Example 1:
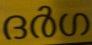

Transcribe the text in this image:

ദർഗ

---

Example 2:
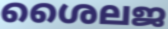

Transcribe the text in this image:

ശൈലജ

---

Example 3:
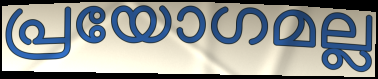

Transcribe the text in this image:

പ്രയോഗമല്ല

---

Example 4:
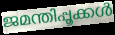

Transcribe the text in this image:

ജമന്തിപ്പൂക്കൾ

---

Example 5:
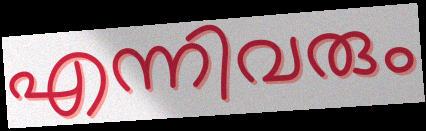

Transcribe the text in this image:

എന്നിവരും